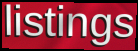
listings